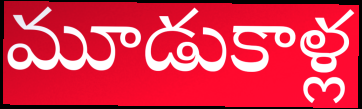
మూడుకాళ్ల